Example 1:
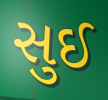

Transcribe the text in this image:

સુઈ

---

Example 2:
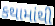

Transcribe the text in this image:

કથામાંથી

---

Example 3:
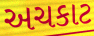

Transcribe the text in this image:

અચકાટ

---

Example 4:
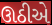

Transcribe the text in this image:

ઊઠીએ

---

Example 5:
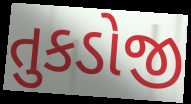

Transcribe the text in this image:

તુકડોજી